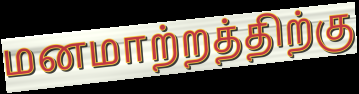
மனமாற்றத்திற்கு